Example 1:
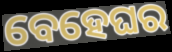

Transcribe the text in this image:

ବେହେଘର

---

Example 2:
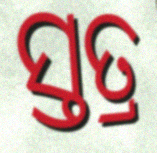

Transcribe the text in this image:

ସ୍ତତ୍ର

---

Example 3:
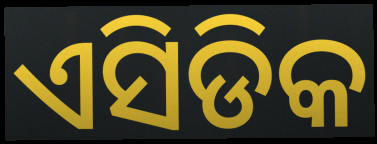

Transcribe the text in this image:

ଏସିଡିକ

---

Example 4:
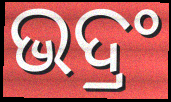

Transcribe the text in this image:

ଭଦ୍ରଂ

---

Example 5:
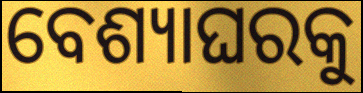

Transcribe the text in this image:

ବେଶ୍ୟାଘରକୁ